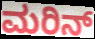
ಮರಿನ್